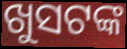
ଖୁସଟଙ୍କ